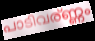
പാടിവര്ണ്ണം